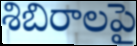
శిబిరాలపై